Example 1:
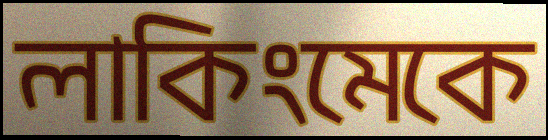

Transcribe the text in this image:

লাকিংমেকে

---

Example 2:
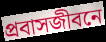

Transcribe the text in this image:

প্রবাসজীবনে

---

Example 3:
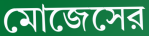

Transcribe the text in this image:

মোজেসের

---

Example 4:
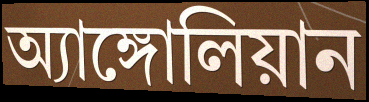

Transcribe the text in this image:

অ্যাঙ্গোলিয়ান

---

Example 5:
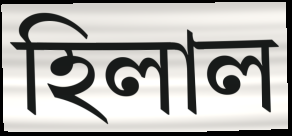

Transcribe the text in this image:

হিলাল